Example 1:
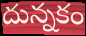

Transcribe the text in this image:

దున్నకం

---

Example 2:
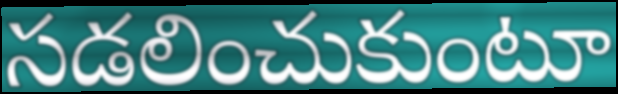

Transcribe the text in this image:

సడలించుకుంటూ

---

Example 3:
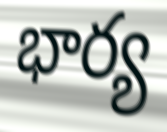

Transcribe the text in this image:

భార్య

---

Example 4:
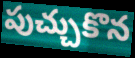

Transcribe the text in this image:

పుచ్చుకొన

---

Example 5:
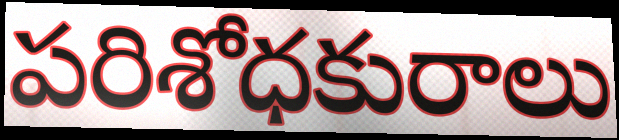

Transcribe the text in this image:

పరిశోధకురాలు